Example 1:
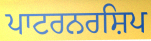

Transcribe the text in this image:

ਪਾਟਰਨਰਸ਼ਿਪ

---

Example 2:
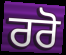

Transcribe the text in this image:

ਰਰੋ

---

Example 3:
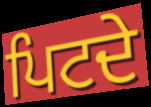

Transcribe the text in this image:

ਪਿਟਦੇ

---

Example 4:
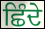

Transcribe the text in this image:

ਛਿੰਦੇ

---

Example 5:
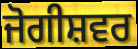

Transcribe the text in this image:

ਜੋਗੀਸ਼ਵਰ